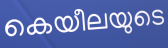
കെയീലയുടെ